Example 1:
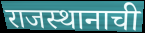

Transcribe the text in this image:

राजस्थानाची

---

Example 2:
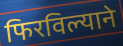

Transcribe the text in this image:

फिरविल्याने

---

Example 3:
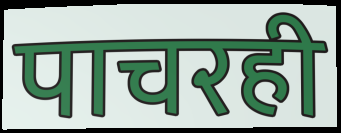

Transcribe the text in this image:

पाचरही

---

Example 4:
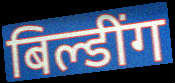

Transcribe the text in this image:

बिल्डींग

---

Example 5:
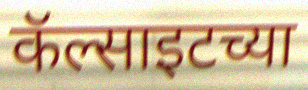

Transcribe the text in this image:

कॅल्साइटच्या